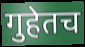
गुहेतच